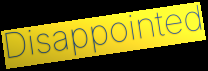
Disappointed